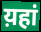
य़हां